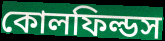
কোলফিল্ডস